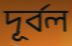
দূর্বল